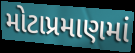
મોટાપ્રમાણમાં